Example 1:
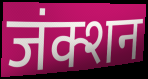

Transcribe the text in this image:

जंक्शन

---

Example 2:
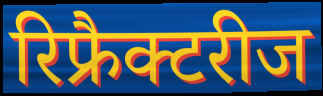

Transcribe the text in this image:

रिफ्रैक्टरीज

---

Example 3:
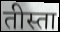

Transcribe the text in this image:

तीस्ता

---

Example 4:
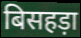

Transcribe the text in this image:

बिसहड़ा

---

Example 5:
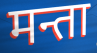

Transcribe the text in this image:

मन्ता